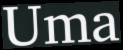
Uma